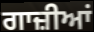
ਗਾਜ਼ੀਆਂ